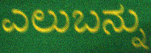
ಎಲುಬನ್ನು